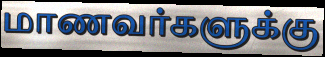
மாணவர்களுக்கு